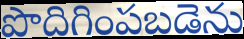
పొదిగింపబడెను